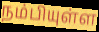
நம்பியுள்ள